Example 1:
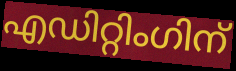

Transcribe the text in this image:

എഡിറ്റിംഗിന്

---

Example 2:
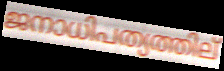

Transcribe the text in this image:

ജനാധിപത്യത്തില്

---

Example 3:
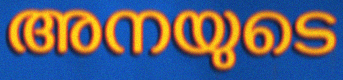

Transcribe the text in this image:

അനയുടെ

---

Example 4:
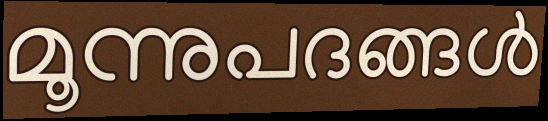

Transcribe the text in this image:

മൂന്നുപദങ്ങൾ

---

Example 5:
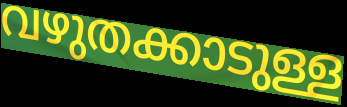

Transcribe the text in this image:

വഴുതക്കാടുള്ള